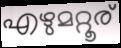
എഴുമറ്റൂര്